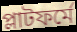
প্লাটফর্মে